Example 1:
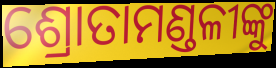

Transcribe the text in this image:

ଶ୍ରୋତାମଣ୍ଡଳୀଙ୍କୁ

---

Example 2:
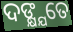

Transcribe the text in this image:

ଦଙ୍କ୍ଷ୍ଯତେ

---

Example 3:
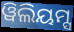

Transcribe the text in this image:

ୱିଲିୟମ୍ସ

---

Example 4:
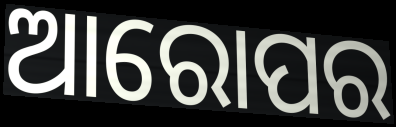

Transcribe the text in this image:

ଆରୋପର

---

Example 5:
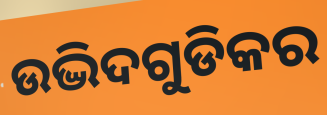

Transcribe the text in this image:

ଉଦ୍ଭିଦଗୁଡିକର